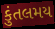
કુંતલમય